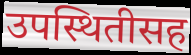
उपस्थितीसह